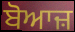
ਬੋਆਜ਼